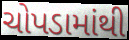
ચોપડામાંથી